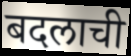
बदलाची